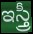
ఇస్త్రీ